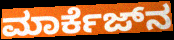
ಮಾರ್ಕೆಜ್‌ನ